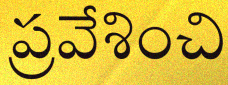
ప్రవేశించి